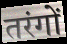
तरंगों